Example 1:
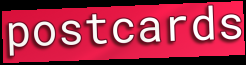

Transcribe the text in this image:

postcards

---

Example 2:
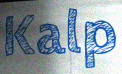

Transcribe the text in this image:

Kalp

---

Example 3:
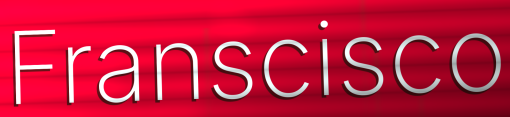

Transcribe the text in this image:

Franscisco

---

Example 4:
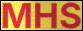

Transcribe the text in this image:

MHS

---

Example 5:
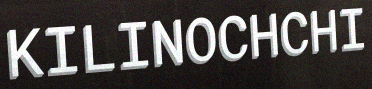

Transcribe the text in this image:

KILINOCHCHI